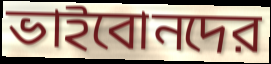
ভাইবোনদের